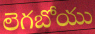
లెగబోయు